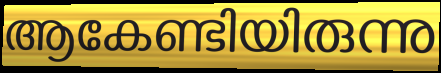
ആകേണ്ടിയിരുന്നു